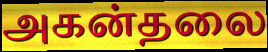
அகன்தலை